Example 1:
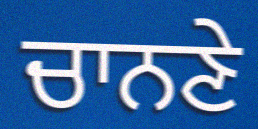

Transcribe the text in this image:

ਚਾਨਣੇ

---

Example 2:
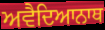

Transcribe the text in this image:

ਅਵੈਦਿਆਨਾਥ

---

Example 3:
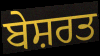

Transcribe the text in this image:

ਬੇਸ਼ਰਤ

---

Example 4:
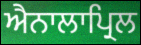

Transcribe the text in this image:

ਐਨਾਲਾਪ੍ਰਿਲ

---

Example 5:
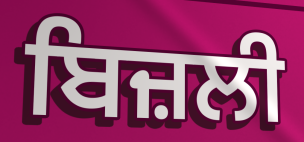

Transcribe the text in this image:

ਬਿਜ਼ਲੀ